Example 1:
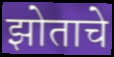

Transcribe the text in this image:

झोताचे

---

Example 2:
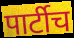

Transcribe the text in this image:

पार्टीच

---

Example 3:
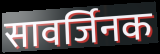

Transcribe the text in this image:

सावर्जिनक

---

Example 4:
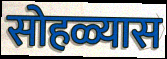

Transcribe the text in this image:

सोहळ्यास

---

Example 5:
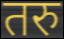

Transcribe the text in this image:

तरु